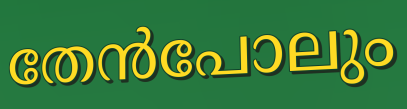
തേൻപോലും